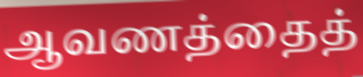
ஆவணத்தைத்